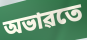
অভাৱতে